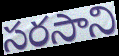
సరసాని